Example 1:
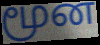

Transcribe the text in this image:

மூன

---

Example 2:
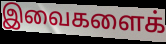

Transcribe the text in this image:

இவைகளைக்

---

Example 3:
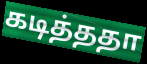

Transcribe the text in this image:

கடித்ததா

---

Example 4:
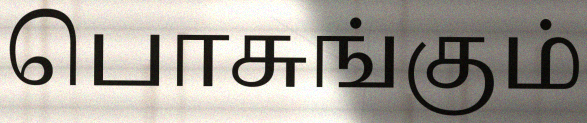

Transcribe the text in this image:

பொசுங்கும்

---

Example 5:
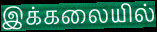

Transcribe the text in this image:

இக்கலையில்